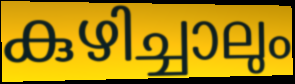
കുഴിച്ചാലും